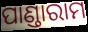
ପାଣ୍ଡାରାମ